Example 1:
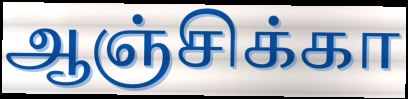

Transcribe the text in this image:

ஆஞ்சிக்கா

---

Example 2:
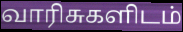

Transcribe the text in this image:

வாரிசுகளிடம்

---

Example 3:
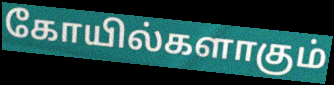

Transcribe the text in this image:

கோயில்களாகும்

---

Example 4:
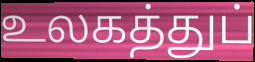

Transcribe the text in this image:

உலகத்துப்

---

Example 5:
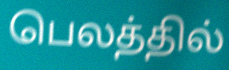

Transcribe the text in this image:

பெலத்தில்